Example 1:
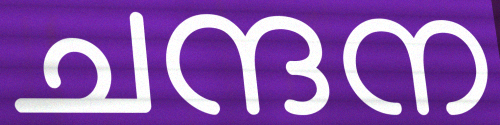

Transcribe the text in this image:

ചന്ദന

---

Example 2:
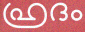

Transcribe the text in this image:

ഹ്രദം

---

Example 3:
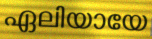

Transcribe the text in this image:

ഏലിയായേ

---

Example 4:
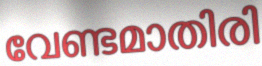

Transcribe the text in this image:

വേണ്ടമാതിരി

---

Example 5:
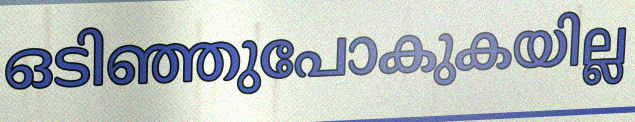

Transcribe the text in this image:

ഒടിഞ്ഞുപോകുകയില്ല